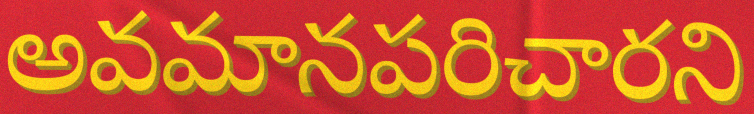
అవమానపరిచారని